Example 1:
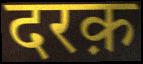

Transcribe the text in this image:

दरक़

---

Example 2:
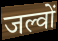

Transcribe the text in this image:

जल्वों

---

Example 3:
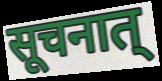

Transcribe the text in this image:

सूचनात्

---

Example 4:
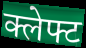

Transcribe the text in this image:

क्लेफ्ट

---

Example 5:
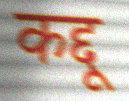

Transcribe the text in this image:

कद्दू